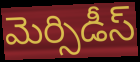
మెర్సిడీస్